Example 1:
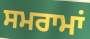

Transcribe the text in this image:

ਸਮਰਾਮਾਂ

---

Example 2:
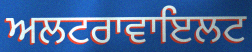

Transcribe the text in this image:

ਅਲਟਰਾਵਾਇਲਟ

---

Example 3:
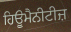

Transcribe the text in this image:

ਹਿਊਮੈਨੀਟੀਜ਼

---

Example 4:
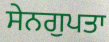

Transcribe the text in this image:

ਸੇਨਗੁਪਤਾ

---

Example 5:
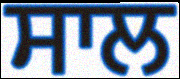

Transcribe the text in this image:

ਸਾਲ